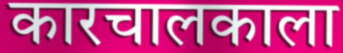
कारचालकाला